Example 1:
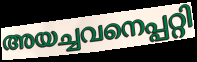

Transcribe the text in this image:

അയച്ചവനെപ്പറ്റി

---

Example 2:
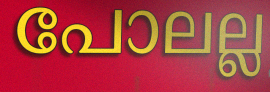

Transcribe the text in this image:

പോലല്ല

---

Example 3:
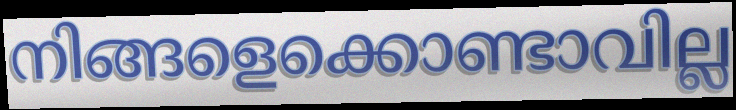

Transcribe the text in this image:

നിങ്ങളെക്കൊണ്ടാവില്ല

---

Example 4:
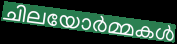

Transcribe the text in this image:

ചിലയോർമ്മകൾ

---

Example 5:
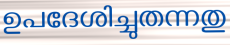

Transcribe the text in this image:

ഉപദേശിച്ചുതന്നതു